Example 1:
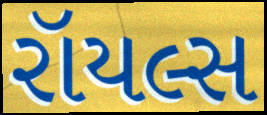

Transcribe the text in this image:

રૉયલ્સ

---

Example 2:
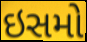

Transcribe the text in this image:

ઇસમો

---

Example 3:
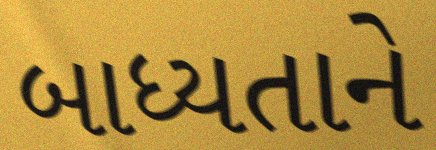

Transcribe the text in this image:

બાધ્યતાને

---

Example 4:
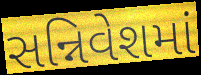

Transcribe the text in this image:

સન્નિવેશમાં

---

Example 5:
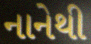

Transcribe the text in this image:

નાનેથી